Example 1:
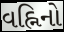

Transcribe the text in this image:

વહ્નિનો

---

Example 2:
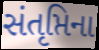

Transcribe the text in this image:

સંતૃપ્તિના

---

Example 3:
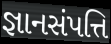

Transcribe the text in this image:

જ્ઞાનસંપત્તિ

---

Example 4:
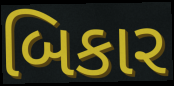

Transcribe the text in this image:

બિકાર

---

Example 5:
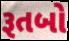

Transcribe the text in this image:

રૂતબો